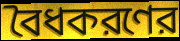
বৈধকরণের